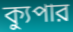
ক্যুপার